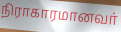
நிராகாரமானவர்